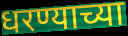
धरण्याच्या